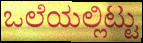
ಒಲೆಯಲ್ಲಿಟ್ಟು